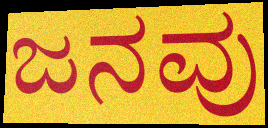
ಜನವು